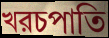
খরচপাতি